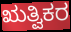
ಋತ್ವಿಕರ